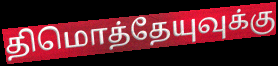
திமொத்தேயுவுக்கு